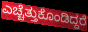
ಎಚ್ಚೆತ್ತುಕೊಂಡಿದ್ದರೆ